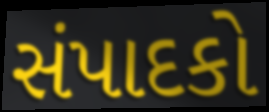
સંપાદકો